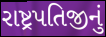
રાષ્ટ્રપતિજીનું